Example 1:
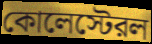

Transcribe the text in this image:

কোলেস্টেরল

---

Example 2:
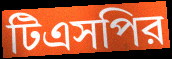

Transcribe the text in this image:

টিএসপির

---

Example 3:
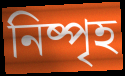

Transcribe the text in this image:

নিষ্পৃহ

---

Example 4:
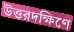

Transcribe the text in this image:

উত্তরদক্ষিণে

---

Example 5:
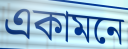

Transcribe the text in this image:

একামনে